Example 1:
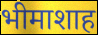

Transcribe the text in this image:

भीमाशाह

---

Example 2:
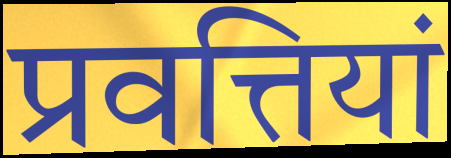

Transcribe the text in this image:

प्रवत्तियां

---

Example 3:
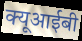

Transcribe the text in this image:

क्यूआईबी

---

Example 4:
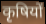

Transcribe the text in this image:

कृषियों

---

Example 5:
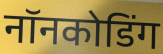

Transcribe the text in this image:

नॉनकोडिंग